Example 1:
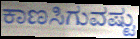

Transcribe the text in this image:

ಕಾಣಸಿಗುವಷ್ಟು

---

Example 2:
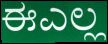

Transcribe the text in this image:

ಈಎಲ್ಲ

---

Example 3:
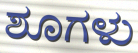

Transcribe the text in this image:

ಶೂಗಳು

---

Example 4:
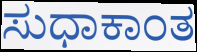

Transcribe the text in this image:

ಸುಧಾಕಾಂತ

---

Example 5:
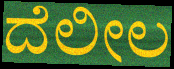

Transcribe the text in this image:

ದೆಲೀಲ